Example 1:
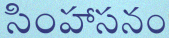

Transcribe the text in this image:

సింహాసనం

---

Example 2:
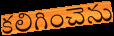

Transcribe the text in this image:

కలిగించెను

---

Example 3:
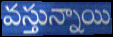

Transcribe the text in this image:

వస్తున్నాయి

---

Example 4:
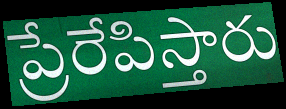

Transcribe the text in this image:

ప్రేరేపిస్తారు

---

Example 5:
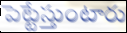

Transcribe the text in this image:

పెట్టేస్తుంటారు